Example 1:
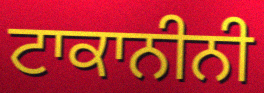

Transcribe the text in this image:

ਟਾਕਾਨੀਨੀ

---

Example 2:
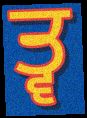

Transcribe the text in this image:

ਤ੍ਵ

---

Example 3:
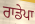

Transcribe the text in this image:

ਰਾਡੇਪਾ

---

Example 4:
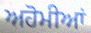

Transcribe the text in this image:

ਅਹੋਮੀਆਂ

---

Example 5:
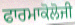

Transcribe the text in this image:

ਫਾਰਮਾਕੋਲੋਜੀ